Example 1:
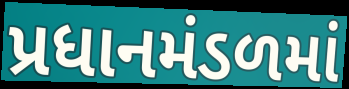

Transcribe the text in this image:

પ્રધાનમંડળમાં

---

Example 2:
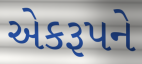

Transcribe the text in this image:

એકરૂપને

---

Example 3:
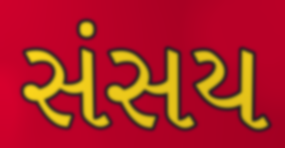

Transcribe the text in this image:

સંસય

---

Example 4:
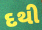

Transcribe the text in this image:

દથી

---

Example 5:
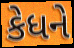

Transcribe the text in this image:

કેધને